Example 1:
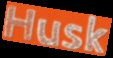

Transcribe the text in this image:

Husk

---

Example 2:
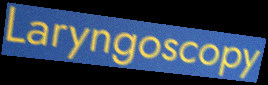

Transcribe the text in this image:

Laryngoscopy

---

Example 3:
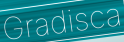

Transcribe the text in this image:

Gradisca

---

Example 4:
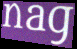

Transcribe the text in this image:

nag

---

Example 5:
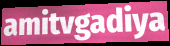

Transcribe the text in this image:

amitvgadiya